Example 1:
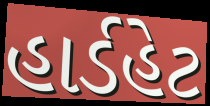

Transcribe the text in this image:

હાર્ડહેટ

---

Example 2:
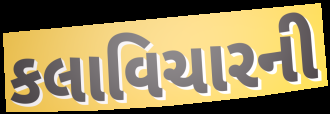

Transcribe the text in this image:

કલાવિચારની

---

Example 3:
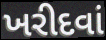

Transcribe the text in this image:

ખરીદવાં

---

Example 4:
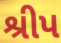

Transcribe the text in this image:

શ્રીપ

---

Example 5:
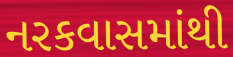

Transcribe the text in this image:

નરકવાસમાંથી